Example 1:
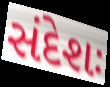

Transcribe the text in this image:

સંદેશઃ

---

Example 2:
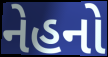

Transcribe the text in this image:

નેહનો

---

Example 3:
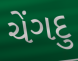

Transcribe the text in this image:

ચેંગદુ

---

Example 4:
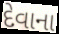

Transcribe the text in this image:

દેવાના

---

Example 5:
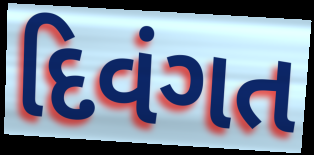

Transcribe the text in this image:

દિવંગત